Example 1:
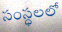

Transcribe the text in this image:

సంస్ధలలో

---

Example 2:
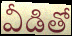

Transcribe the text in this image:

వీడితో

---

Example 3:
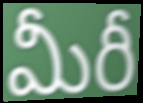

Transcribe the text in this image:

మీరీ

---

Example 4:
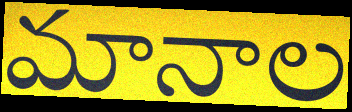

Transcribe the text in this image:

మానాల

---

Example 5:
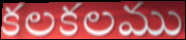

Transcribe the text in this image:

కలకలము